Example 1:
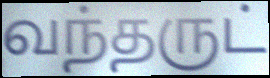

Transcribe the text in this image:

வந்தருட்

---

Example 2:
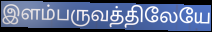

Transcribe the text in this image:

இளம்பருவத்திலேயே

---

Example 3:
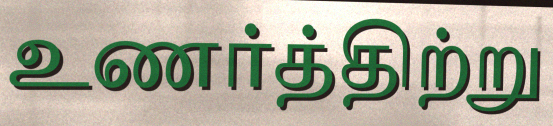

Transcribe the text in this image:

உணர்த்திற்று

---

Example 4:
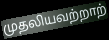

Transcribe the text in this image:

முதலியவற்றாற்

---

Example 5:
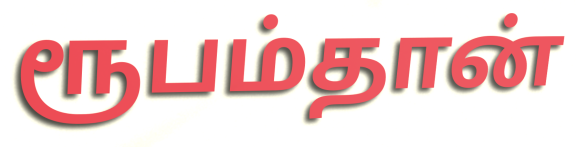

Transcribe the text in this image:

ரூபம்தான்